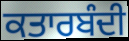
ਕਤਾਰਬੰਦੀ